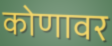
कोणावर